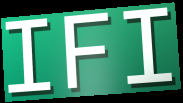
IFI